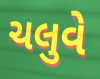
ચલુવે